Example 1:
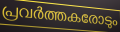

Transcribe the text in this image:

പ്രവർത്തകരോടും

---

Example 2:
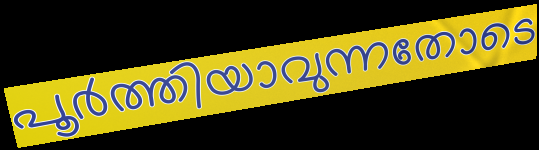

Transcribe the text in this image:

പൂർത്തിയാവുന്നതോടെ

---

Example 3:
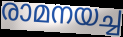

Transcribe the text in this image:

രാമനയച്ച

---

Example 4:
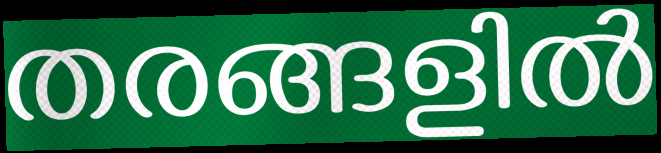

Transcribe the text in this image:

തരങ്ങളിൽ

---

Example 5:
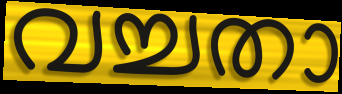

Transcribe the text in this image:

വച്ചതാ